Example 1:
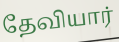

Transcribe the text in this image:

தேவியார்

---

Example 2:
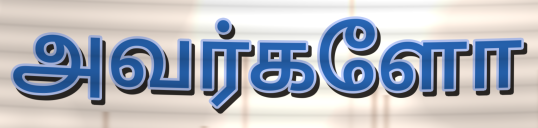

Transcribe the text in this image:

அவர்களோ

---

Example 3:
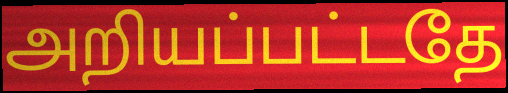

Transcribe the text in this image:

அறியப்பட்டதே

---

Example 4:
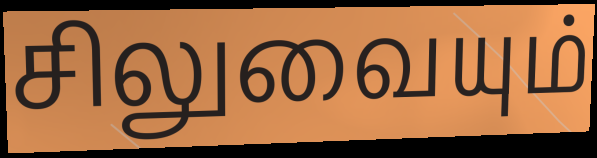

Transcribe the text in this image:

சிலுவையும்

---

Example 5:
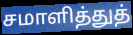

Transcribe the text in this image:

சமாளித்துத்